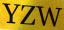
YZW